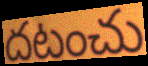
దటంచు